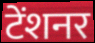
टेंशनर